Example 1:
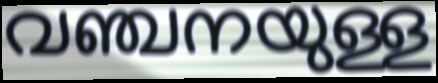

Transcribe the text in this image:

വഞ്ചനയുള്ള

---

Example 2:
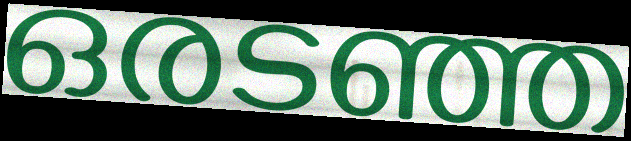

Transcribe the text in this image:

ഒരടഞ്ഞ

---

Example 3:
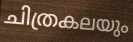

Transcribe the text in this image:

ചിത്രകലയും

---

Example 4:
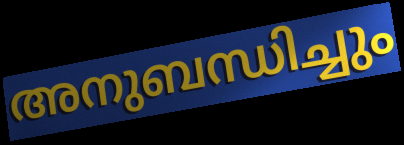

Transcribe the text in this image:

അനുബന്ധിച്ചും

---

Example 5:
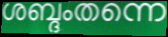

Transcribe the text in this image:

ശബ്ദംതന്നെ